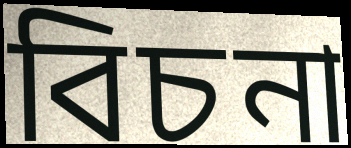
বিচনা